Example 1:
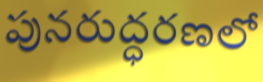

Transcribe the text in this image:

పునరుద్ధరణలో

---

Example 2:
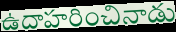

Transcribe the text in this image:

ఉదాహరించినాడు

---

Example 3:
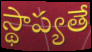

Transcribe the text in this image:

స్థాప్యతే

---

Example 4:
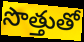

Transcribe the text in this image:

సొత్తుతో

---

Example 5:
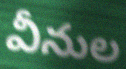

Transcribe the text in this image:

వీనుల